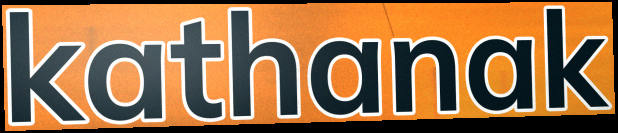
kathanak